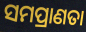
ସମପ୍ରାଣତା